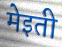
मेइती